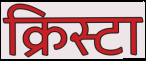
क्रिस्टा